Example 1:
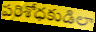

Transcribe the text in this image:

పరిశోధకుడిలా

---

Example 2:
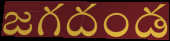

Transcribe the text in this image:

జగదండ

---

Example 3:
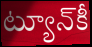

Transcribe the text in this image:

ట్యూన్‌కీ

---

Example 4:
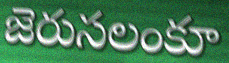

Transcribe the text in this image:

జెరుసలంకూ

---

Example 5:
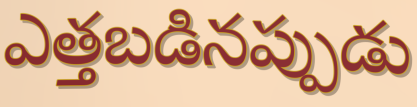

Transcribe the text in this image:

ఎత్తబడినప్పుడు